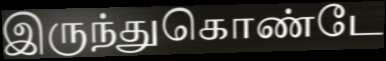
இருந்துகொண்டே